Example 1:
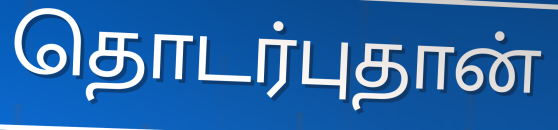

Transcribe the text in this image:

தொடர்புதான்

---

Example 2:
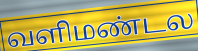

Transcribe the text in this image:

வளிமண்டல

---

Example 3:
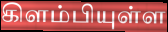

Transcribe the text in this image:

கிளம்பியுள்ள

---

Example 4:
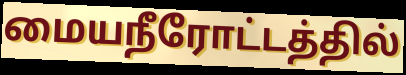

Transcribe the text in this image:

மையநீரோட்டத்தில்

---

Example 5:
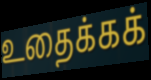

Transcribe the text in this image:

உதைக்கக்